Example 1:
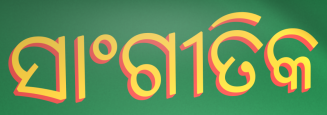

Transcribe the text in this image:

ସାଂଗୀତିକ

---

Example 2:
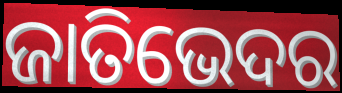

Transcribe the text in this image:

ଜାତିଭେଦର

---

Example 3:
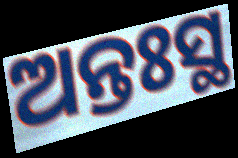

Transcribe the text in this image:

ଅନ୍ତଃସ୍ଥ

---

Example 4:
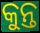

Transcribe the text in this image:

କୁନ୍ତ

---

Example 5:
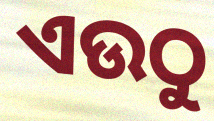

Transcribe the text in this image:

ଏଉଠୁ